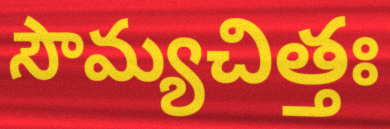
సౌమ్యచిత్తః